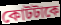
কোটটাকে